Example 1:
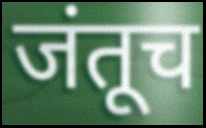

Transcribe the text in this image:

जंतूच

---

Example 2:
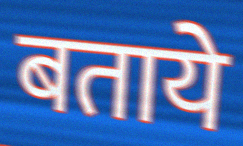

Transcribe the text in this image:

बताये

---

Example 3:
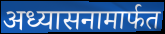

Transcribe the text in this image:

अध्यासनामार्फत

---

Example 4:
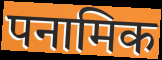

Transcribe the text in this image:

पनामिक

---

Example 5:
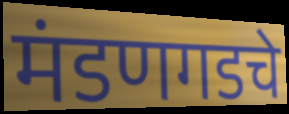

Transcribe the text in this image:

मंडणगडचे